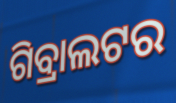
ଗିବ୍ରାଲଟର